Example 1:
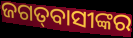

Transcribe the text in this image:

ଜଗତ୍‍ବାସୀଙ୍କର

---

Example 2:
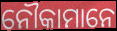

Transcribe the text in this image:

ନୌକାମାନେ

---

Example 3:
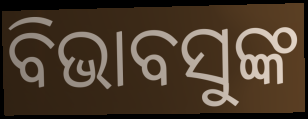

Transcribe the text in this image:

ବିଭାବସୁଙ୍କ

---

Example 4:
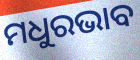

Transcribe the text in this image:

ମଧୁରଭାବ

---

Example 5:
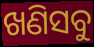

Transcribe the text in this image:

ଖଣିସବୁ